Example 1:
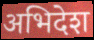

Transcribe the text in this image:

अभिदेश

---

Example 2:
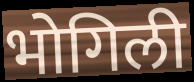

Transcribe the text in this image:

भोगिली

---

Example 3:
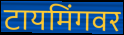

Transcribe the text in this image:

टायमिंगवर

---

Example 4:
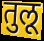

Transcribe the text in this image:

तुलू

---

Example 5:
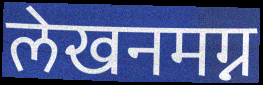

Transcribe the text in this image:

लेखनमग्न